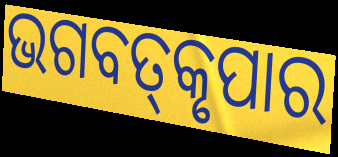
ଭଗବତ୍‌କୃପାର